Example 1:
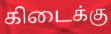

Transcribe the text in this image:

கிடைக்கு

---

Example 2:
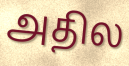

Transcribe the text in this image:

அதில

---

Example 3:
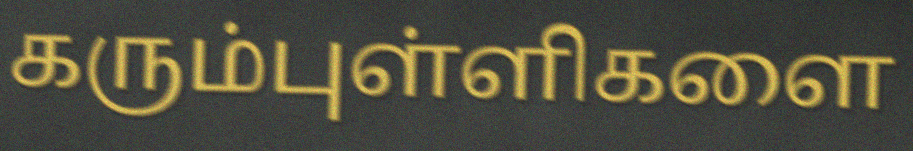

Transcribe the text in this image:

கரும்புள்ளிகளை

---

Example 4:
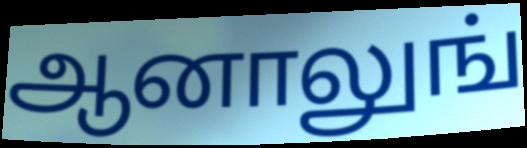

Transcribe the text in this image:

ஆனாலுங்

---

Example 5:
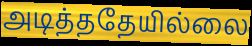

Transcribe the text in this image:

அடித்ததேயில்லை